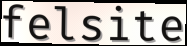
felsite